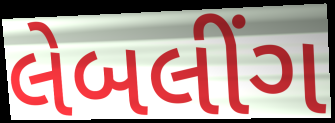
લેબલીંગ